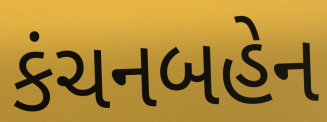
કંચનબહેન